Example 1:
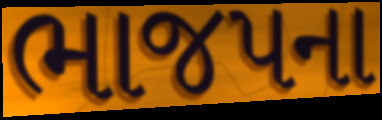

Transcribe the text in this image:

ભાજપના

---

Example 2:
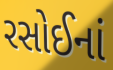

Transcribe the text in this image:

રસોઈનાં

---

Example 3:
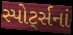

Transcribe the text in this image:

સ્પોર્ટ્સનાં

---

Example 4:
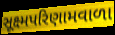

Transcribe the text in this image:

સૂક્ષ્મપરિણામવાળા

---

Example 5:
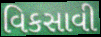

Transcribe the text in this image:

વિકસાવી